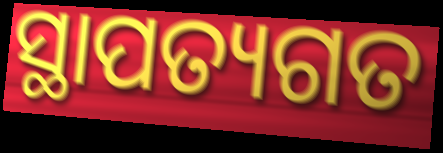
ସ୍ଥାପତ୍ୟଗତ